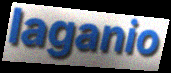
laganio